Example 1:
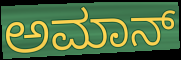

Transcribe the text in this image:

ಅಮಾನ್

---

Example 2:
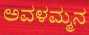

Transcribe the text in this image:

ಅವಳಮ್ಮನ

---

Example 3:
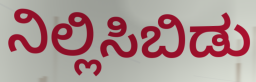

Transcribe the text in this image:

ನಿಲ್ಲಿಸಿಬಿಡು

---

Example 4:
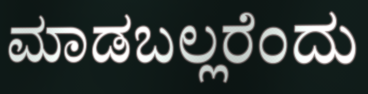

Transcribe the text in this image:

ಮಾಡಬಲ್ಲರೆಂದು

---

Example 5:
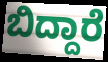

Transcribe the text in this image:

ಬಿದ್ದಾರೆ